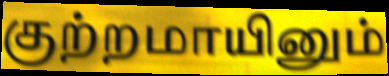
குற்றமாயினும்